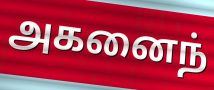
அகனைந்